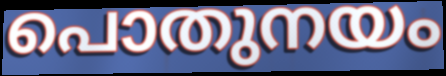
പൊതുനയം